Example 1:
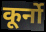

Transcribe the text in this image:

कूर्नो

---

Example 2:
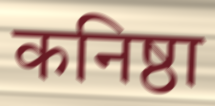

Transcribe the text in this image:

कनिष्ठा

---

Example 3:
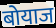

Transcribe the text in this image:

बोयाज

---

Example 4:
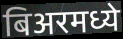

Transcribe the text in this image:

बिअरमध्ये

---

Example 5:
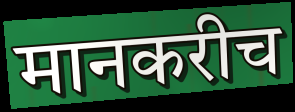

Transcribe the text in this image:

मानकरीच